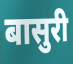
बासुरी